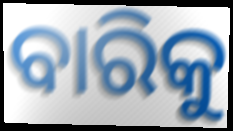
ବାରିକୁ